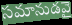
సమానుడవై